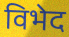
विभेद